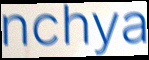
nchya